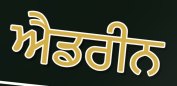
ਐਡਰੀਨ